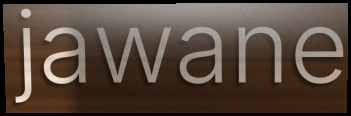
jawane